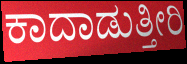
ಕಾದಾಡುತ್ತೀರಿ